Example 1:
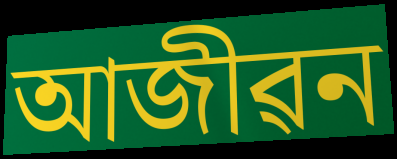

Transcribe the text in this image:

আজীৱন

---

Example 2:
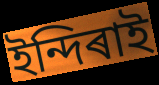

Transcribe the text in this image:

ইন্দিৰাই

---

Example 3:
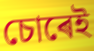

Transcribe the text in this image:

চোৰেই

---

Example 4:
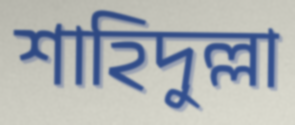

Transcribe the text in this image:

শাহিদুল্লা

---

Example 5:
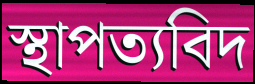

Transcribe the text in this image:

স্থাপত্যবিদ